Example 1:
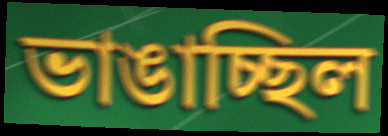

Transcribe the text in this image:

ভাঙাচ্ছিল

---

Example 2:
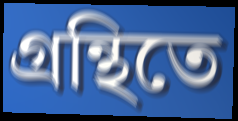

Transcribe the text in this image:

গ্রন্থিতে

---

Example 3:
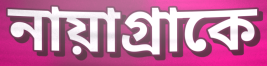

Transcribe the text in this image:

নায়াগ্রাকে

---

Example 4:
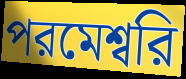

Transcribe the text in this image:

পরমেশ্বরি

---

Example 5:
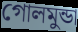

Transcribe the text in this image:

গোলমুন্ডা